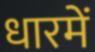
धारमें